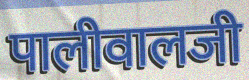
पालीवालजी